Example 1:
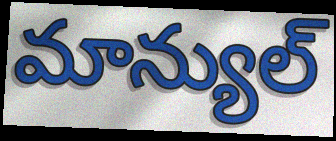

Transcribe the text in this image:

మాన్యుల్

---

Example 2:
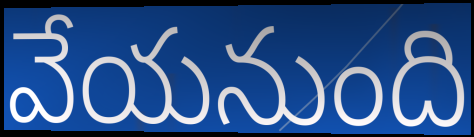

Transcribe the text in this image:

వేయనుంది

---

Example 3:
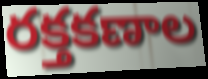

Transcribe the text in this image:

రక్తకణాల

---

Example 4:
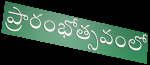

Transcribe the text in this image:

ప్రారంభోత్సవంలో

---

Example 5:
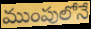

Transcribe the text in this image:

ముంపులోనే